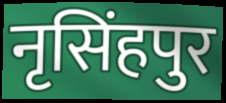
नृसिंहपुर